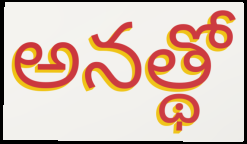
అనత్థో